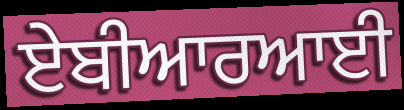
ਏਬੀਆਰਆਈ